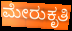
ಮೇರುಕೃತಿ